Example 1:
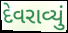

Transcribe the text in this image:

દેવરાવ્યું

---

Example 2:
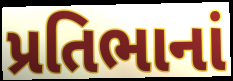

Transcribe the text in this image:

પ્રતિભાનાં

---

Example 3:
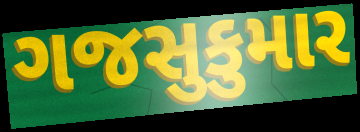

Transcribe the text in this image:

ગજસુકુમાર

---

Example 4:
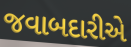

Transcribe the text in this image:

જવાબદારીએ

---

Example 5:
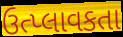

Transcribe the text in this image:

ઉત્પ્લાવકતા